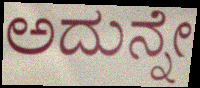
ಅದುನ್ನೇ